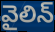
వైలిన్